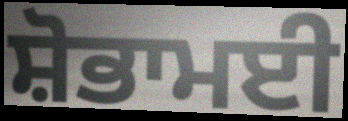
ਸ਼ੋਭਾਮਈ